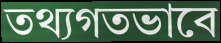
তথ্যগতভাবে